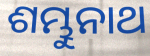
ଶମ୍ଭୁନାଥ